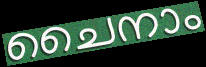
ചൈനാം